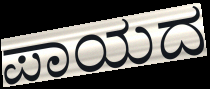
ಪಾಯದ